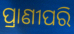
ପ୍ରାଣୀପରି